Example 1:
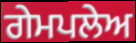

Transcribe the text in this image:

ਗੇਮਪਲੇਅ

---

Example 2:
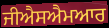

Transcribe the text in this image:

ਜੀਐਸਐਮਆਰ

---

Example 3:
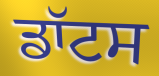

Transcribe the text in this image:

ਡਾੱਟਸ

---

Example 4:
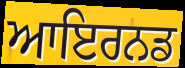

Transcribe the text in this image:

ਆਇਰਨਡ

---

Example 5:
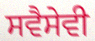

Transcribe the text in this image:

ਸਵੈਸੇਵੀ